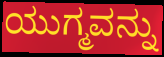
ಯುಗ್ಮವನ್ನು